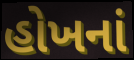
હોખનાં